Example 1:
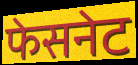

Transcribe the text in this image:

फेसनेट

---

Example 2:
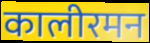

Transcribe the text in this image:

कालीरमन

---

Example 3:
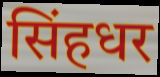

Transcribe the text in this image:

सिंहधर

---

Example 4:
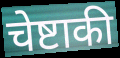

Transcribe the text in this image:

चेष्टाकी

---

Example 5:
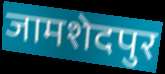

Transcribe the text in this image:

जामशेदपुर